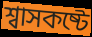
শ্বাসকষ্টে